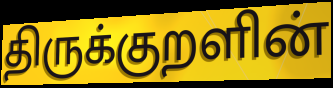
திருக்குறளின்